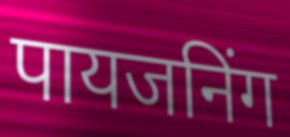
पायजनिंग